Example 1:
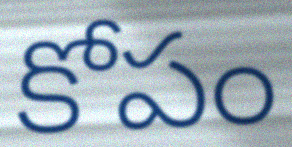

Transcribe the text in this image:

కోపం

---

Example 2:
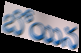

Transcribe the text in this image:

బోయిన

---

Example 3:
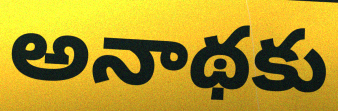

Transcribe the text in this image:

అనాథకు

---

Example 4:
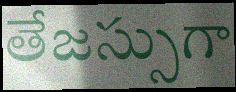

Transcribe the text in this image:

తేజస్సుగా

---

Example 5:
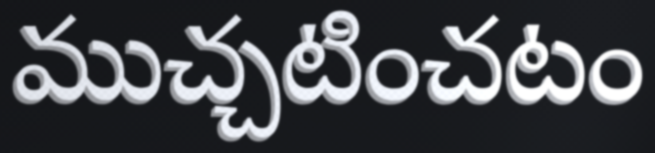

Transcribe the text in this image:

ముచ్చటించటం